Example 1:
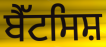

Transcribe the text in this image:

ਬੈੱਟਸਿਸ਼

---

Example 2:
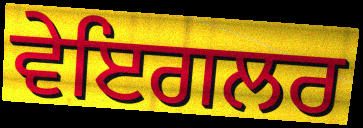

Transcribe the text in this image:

ਵੇਇਗਲਰ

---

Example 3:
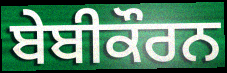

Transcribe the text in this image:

ਬੇਬੀਕੌਰਨ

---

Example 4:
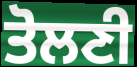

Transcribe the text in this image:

ਤੋਲਣੀ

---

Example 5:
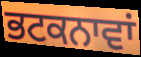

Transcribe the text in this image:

ਭਟਕਨਾਵਾਂ